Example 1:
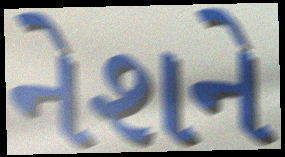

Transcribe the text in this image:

નેશને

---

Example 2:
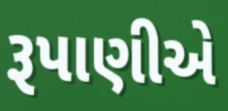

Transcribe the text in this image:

રૂપાણીએ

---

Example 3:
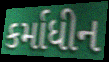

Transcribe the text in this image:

કર્માધીન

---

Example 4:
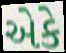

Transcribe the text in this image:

એકે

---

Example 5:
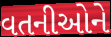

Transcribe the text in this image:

વતનીઓને